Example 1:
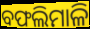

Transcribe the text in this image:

ବଫଲିମାଳି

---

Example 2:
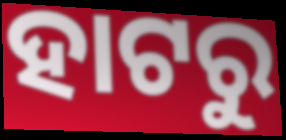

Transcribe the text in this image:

ହାଟରୁ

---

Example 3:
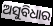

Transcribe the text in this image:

ଅସୁବିଧାର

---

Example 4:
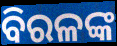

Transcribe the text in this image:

ବିରଳଙ୍କ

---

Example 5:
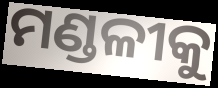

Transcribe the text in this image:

ମଣ୍ଡଳୀକୁ